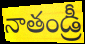
నాతండ్రీ